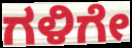
ಗಳಿಗೇ